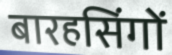
बारहसिंगों